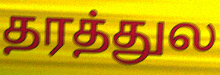
தரத்துல